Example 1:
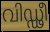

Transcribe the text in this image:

വിഡ്ഢീ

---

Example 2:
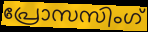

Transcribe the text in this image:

പ്രോസസിംഗ്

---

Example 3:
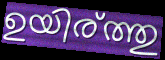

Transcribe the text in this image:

ഉയിര്ത്തു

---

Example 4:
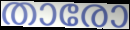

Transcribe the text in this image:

താരോ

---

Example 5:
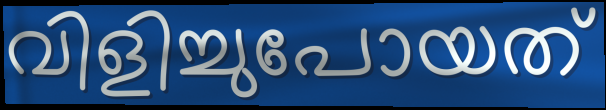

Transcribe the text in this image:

വിളിച്ചുപോയത്